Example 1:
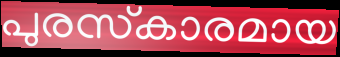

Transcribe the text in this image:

പുരസ്‌കാരമായ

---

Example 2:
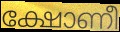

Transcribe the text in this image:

ക്ഷോണീ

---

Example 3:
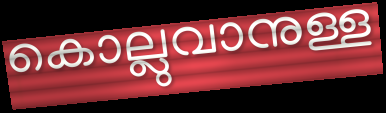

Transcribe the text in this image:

കൊല്ലുവാനുള്ള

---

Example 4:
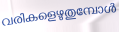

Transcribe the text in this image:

വരികളെഴുതുമ്പോൾ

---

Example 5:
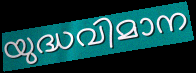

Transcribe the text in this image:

യുദ്ധവിമാന